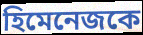
হিমেনেজকে